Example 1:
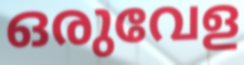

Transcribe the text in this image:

ഒരുവേള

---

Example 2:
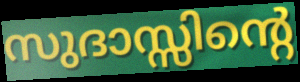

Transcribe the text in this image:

സുദാസ്സിന്റെ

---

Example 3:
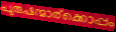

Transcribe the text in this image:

പുരുഷന്മാര്ക്കൊപ്പം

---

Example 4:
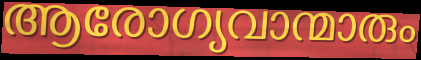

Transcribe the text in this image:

ആരോഗ്യവാന്മാരും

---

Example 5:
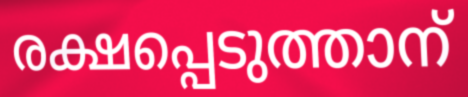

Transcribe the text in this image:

രക്ഷപ്പെടുത്താന്